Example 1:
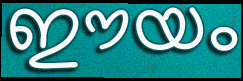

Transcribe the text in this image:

ഈയം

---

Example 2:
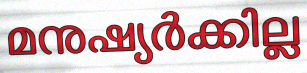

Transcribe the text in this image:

മനുഷ്യർക്കില്ല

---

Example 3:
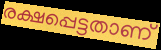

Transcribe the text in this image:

രക്ഷപ്പെട്ടതാണ്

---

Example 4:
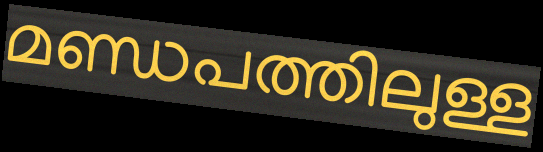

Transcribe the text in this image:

മണ്ഡപത്തിലുള്ള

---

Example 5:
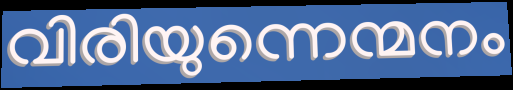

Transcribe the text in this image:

വിരിയുന്നെന്മനം